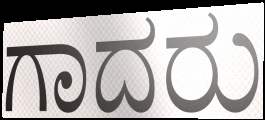
ಗಾದರು